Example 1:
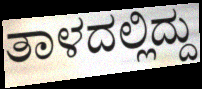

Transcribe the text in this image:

ತಾಳದಲ್ಲಿದ್ದು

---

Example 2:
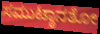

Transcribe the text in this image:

ಸಮುಟ್ಠಾನತೋ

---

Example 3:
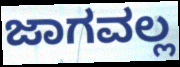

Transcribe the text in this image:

ಜಾಗವಲ್ಲ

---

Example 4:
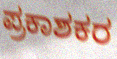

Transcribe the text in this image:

ಪ್ರಕಾಶಕರ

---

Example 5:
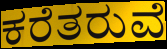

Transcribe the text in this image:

ಕರೆತರುವೆ